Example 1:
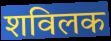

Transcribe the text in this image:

शविलक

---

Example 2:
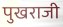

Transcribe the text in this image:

पुखराजी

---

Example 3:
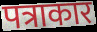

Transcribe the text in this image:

पत्राकार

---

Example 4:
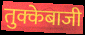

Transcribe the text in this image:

तुक्केबाजी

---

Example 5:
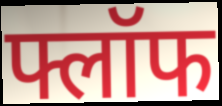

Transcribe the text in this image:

फ्लॉफ